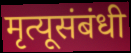
मृत्यूसंबंधी